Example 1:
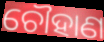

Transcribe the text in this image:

ଚୌହାଣ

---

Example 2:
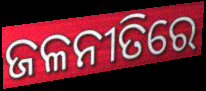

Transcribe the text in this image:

ଜଳନୀତିରେ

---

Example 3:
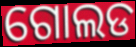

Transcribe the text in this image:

ଗୋଲଡ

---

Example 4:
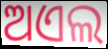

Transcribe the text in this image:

ଅଏଲ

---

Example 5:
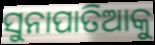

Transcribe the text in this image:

ସୁନାପାତିଆକୁ